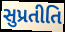
સુપ્રતીતિ